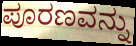
ಪೂರಣವನ್ನು